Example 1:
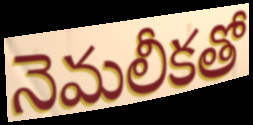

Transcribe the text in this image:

నెమలీకతో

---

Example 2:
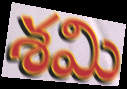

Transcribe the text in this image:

శమి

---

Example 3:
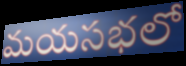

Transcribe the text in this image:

మయసభలో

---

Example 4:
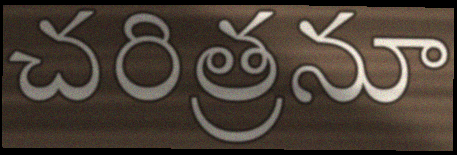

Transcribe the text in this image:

చరిత్రనూ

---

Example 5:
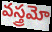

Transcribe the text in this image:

వస్త్రమో